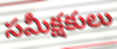
సమీక్షకులు